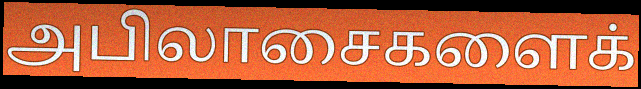
அபிலாசைகளைக்